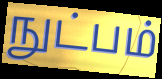
நுட்பம்